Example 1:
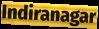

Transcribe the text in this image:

Indiranagar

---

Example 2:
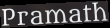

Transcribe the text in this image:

Pramath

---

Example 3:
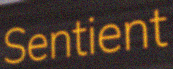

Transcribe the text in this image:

Sentient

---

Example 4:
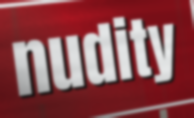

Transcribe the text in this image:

nudity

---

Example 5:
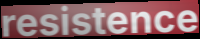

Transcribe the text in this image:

resistence